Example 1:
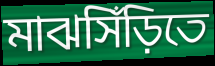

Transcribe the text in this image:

মাঝসিঁড়িতে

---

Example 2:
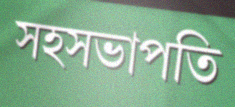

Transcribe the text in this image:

সহসভাপতি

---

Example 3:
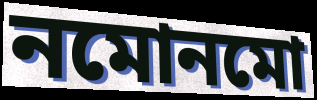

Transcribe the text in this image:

নমোনমো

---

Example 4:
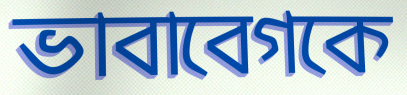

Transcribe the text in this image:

ভাবাবেগকে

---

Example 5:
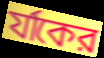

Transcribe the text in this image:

র্যাকের